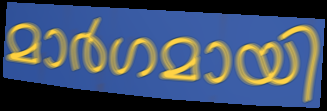
മാർഗമായി